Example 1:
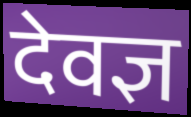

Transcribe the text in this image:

देवज्ञ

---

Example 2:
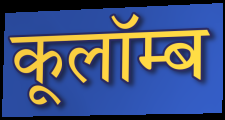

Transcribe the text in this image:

कूलॉम्ब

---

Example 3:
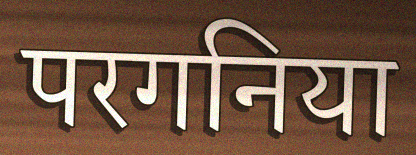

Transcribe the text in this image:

परगनिया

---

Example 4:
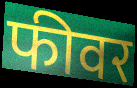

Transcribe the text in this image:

फीवर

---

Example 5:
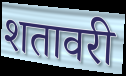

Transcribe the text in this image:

शतावरी